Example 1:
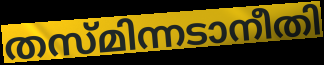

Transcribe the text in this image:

തസ്മിന്നടാനീതി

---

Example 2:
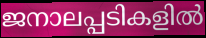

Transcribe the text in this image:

ജനാലപ്പടികളിൽ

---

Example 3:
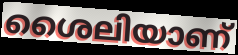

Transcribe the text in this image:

ശൈലിയാണ്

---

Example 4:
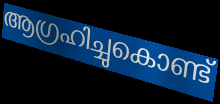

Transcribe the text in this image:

ആഗ്രഹിച്ചുകൊണ്ട്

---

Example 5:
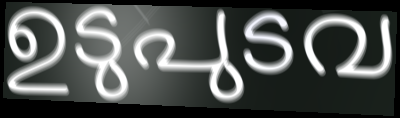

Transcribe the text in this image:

ഉടുപുടവ